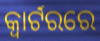
କ୍ୱାର୍ଟରରେ